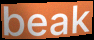
beak